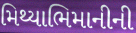
મિથ્યાભિમાનીની